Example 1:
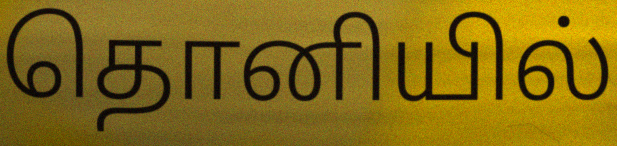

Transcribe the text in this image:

தொனியில்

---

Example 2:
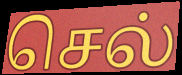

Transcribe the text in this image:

செல்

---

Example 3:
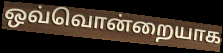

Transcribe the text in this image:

ஒவ்வொன்றையாக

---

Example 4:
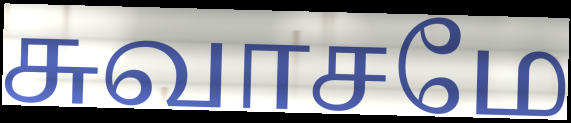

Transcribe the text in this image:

சுவாசமே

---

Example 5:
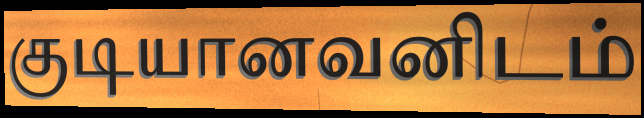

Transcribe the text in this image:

குடியானவனிடம்